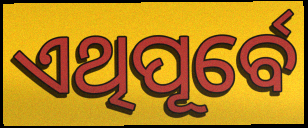
ଏଥିପୂର୍ବେ